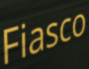
Fiasco